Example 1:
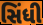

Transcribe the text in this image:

સિંધી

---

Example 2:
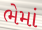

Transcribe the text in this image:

ભેમાં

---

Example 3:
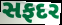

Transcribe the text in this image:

સફદર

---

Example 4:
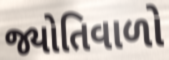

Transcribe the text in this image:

જ્યોતિવાળો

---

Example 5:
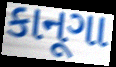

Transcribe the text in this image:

કાનૂગા